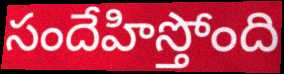
సందేహిస్తోంది